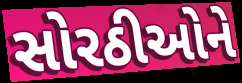
સોરઠીઓને